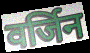
वर्जिन